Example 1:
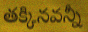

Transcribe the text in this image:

తక్కినవన్నీ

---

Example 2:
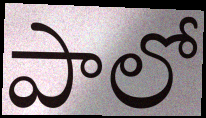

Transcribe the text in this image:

పాలో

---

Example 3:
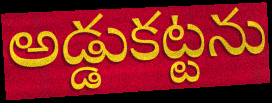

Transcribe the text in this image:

అడ్డుకట్టను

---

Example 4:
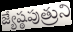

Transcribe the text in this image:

జ్యేష్ఠపుత్రుని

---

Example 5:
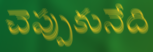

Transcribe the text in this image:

చెప్పుకునేది